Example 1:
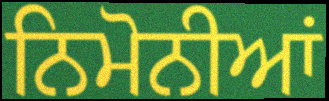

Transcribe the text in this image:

ਨਿਮੋਨੀਆਂ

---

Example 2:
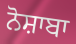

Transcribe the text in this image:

ਨੋਸ਼ਾਬਾ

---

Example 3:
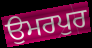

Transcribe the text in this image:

ਉਮਰਪੁਰ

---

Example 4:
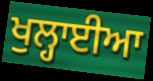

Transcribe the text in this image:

ਖੁਲ੍ਹਾਈਆ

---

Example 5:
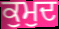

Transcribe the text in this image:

ਕੁਮੁਦ